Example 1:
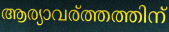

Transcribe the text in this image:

ആര്യാവര്ത്തത്തിന്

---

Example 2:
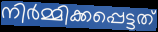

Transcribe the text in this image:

നിർമ്മിക്കപ്പെട്ടത്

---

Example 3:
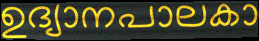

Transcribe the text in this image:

ഉദ്യാനപാലകാ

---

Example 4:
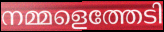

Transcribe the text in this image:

നമ്മളെത്തേടി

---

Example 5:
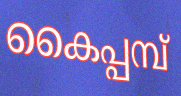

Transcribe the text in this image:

കൈപ്പമ്പ്